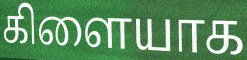
கிளையாக